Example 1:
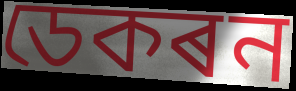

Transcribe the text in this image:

ডেকৰন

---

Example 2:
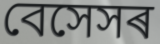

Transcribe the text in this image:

বেসেসৰ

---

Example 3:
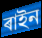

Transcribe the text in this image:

ৰাইন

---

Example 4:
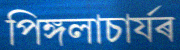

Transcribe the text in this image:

পিঙ্গলাচাৰ্যৰ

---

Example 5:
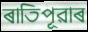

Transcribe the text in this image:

ৰাতিপূৱাৰ